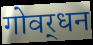
गोवर्धन